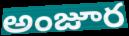
అంజూర